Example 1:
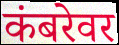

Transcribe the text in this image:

कंबरेवर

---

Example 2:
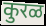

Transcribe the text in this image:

कुरळ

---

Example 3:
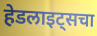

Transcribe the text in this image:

हेडलाइट्सचा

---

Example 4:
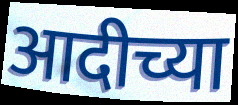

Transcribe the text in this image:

आदीच्या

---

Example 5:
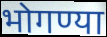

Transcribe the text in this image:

भोगण्या